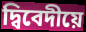
দ্বিবেদীয়ে